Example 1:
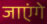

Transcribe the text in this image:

जाएंगे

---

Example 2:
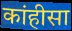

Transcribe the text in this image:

कांहीसा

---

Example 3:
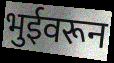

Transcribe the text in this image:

भुईवरून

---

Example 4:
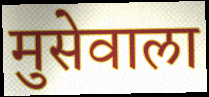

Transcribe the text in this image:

मुसेवाला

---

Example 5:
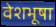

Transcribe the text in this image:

वेशभूषा